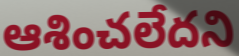
ఆశించలేదని